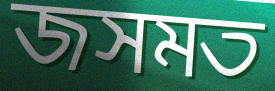
জসমত